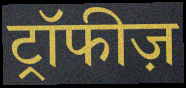
ट्रॉफीज़